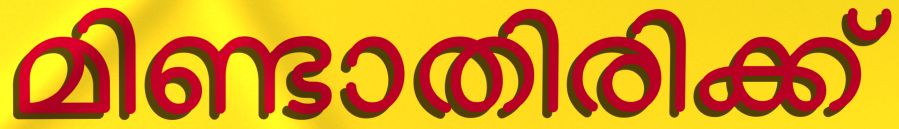
മിണ്ടാതിരിക്ക്